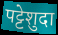
पट्टेशुदा